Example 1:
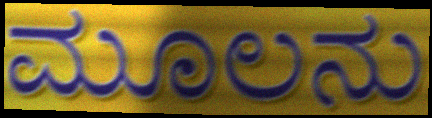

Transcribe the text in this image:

ಮೂಲನು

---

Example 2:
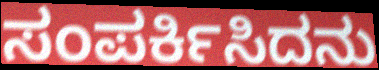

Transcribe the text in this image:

ಸಂಪರ್ಕಿಸಿದನು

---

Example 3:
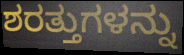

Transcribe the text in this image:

ಶರತ್ತುಗಳನ್ನು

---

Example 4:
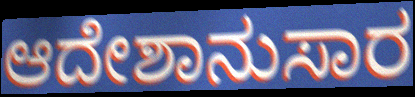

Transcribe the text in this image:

ಆದೇಶಾನುಸಾರ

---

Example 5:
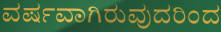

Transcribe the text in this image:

ವರ್ಷವಾಗಿರುವುದರಿಂದ